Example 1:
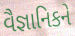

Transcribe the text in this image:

વૈજ્ઞાનિકને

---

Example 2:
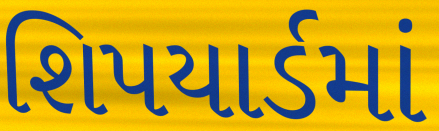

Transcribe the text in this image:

શિપયાર્ડમાં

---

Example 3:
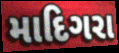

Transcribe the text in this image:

માદિગરા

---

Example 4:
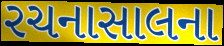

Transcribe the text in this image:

રચનાસાલના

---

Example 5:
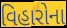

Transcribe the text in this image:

વિહારોના